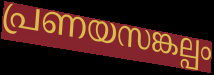
പ്രണയസങ്കല്പം